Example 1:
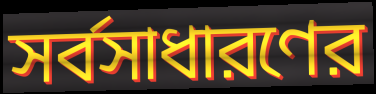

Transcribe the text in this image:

সর্বসাধারণের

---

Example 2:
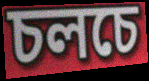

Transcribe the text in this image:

চলচে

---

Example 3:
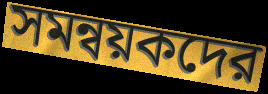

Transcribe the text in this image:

সমন্বয়কদের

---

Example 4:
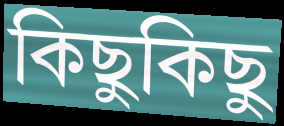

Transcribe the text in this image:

কিছুকিছু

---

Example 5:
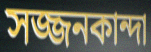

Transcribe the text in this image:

সজ্জনকান্দা